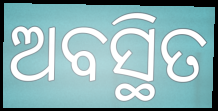
ଅବସ୍ଥିତ